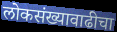
लोकसंख्यावाढीचा